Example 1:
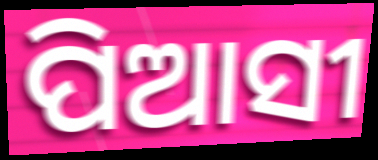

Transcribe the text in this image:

ପିଆସୀ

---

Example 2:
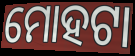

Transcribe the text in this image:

ମୋହଟା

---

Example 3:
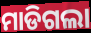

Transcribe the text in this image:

ମାଡିଗଲା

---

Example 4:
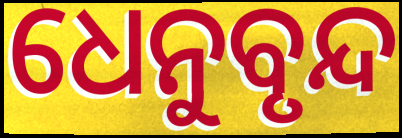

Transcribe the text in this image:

ଧେନୁବୃନ୍ଦ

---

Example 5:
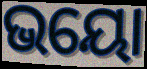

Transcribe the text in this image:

ଭୟୋ